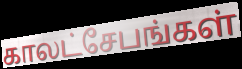
காலட்சேபங்கள்